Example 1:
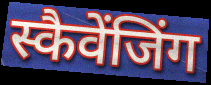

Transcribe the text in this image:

स्कैवेंजिंग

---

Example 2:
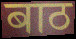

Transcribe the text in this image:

बाठ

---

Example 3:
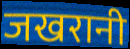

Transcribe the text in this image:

जखरानी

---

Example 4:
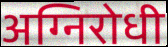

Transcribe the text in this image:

अग्निरोधी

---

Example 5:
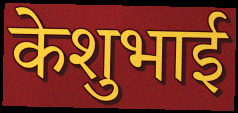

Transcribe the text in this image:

केशुभाई